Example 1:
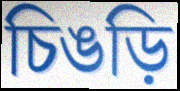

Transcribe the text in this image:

চিঙড়ি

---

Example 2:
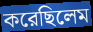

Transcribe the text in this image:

করেছিলেম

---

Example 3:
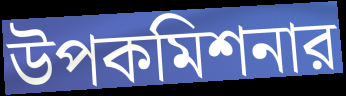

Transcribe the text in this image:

উপকমিশনার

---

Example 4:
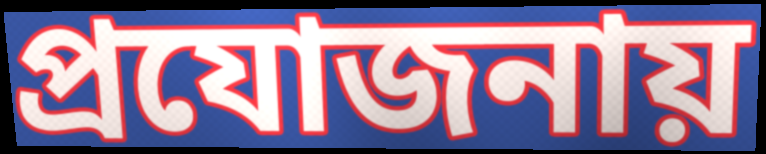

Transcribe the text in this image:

প্রযোজনায়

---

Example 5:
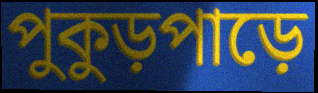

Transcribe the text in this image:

পুকুড়পাড়ে